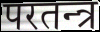
परतन्त्र